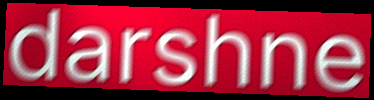
darshne